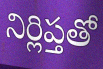
నిర్లిప్తతో